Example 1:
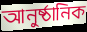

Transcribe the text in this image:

আনুষ্ঠানিক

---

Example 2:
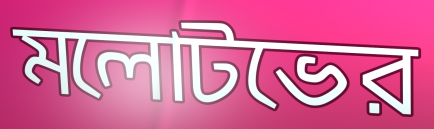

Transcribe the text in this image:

মলোটভের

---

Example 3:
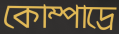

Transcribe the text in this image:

কোম্পাদ্রে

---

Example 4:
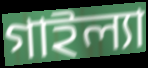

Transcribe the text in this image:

গাইল্যা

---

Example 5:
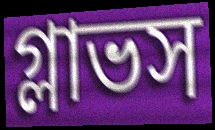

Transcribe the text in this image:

গ্লাভস